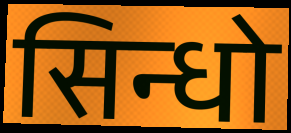
सिन्धो